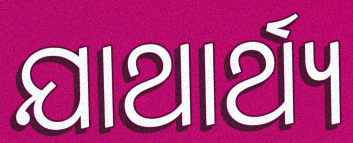
ଯାଥାର୍ଥ୍ୟ